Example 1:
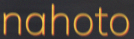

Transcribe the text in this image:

nahoto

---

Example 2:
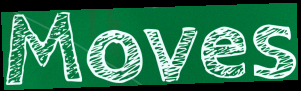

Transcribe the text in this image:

Moves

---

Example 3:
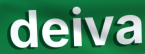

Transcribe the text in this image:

deiva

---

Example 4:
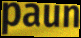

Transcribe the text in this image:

paun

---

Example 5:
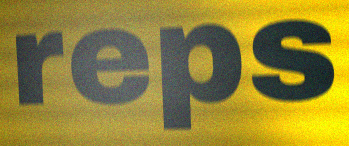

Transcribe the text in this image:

reps